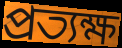
প্রত্যক্ষ